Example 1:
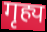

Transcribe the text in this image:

गृह्य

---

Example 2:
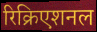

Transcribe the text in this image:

रिक्रिएशनल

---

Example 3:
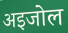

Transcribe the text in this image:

अइजोल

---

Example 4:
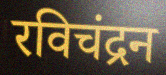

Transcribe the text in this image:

रविचंद्रन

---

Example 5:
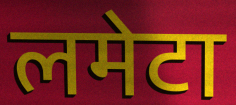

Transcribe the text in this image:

लमेटा